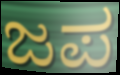
ಜಪ